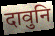
दावुनि